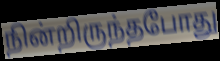
நின்றிருந்தபோது